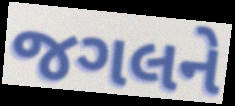
જગલને